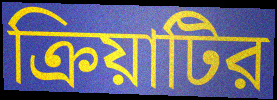
ক্রিয়াটির